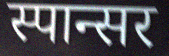
स्पान्सर